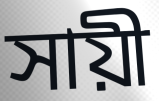
সায়ী